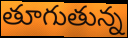
తూగుతున్న